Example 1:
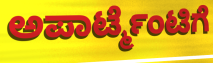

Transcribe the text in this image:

ಅಪಾರ್ಟ್ಮೆಂಟಿಗೆ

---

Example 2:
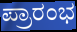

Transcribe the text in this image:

ಪ್ರಾರಂಭ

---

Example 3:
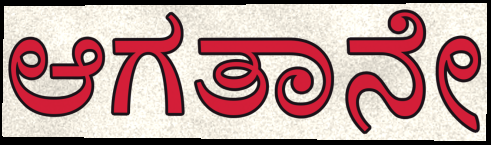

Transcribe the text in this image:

ಆಗತಾನೇ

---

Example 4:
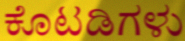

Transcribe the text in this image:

ಕೊಟಡಿಗಳು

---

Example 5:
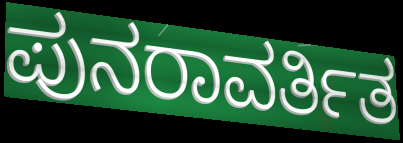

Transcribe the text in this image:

ಪುನರಾವರ್ತಿತ